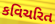
કવિચરિત